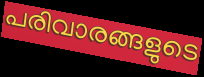
പരിവാരങ്ങളുടെ